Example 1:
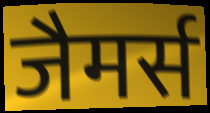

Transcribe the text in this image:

जैमर्स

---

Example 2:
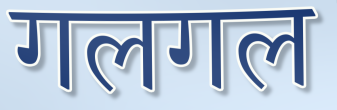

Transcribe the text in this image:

गलगल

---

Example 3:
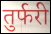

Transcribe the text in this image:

तुर्फरी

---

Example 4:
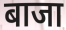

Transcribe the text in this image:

बाजा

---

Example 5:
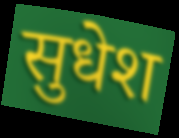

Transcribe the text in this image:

सुधेश